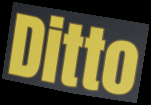
Ditto